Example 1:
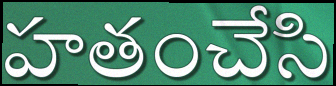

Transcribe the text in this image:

హతంచేసి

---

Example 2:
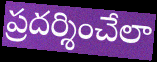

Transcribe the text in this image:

ప్రదర్శించేలా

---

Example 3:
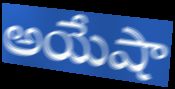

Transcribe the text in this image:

అయేషా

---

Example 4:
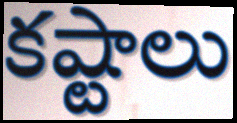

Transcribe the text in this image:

కష్టాలు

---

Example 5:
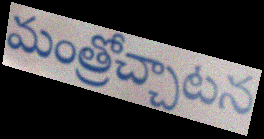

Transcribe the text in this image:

మంత్రోచ్చాటన